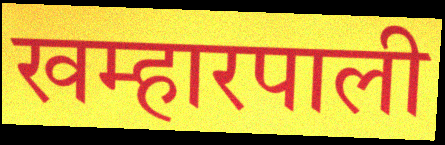
खम्हारपाली